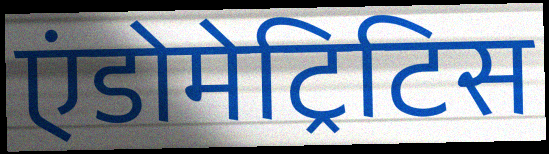
एंडोमेट्रिटिस